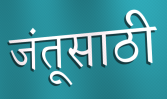
जंतूसाठी